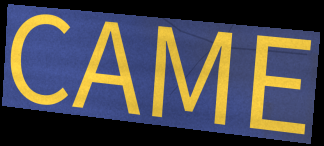
CAME